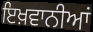
ਇਖ਼ਵਾਨੀਆਂ